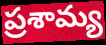
ప్రశామ్య